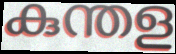
കുന്തള